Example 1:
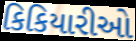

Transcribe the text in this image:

કિકિયારીઓ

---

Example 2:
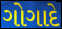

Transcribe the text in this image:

ગોગાદે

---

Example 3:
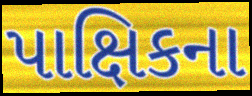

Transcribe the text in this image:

પાક્ષિકના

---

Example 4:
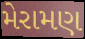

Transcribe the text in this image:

મેરામણ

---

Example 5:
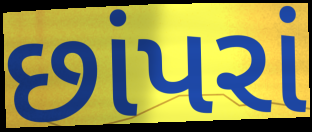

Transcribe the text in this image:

છાંપરાં